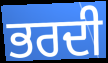
ਭਰਦੀ